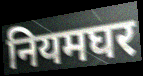
नियमघर